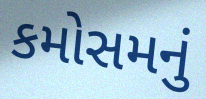
કમોસમનું